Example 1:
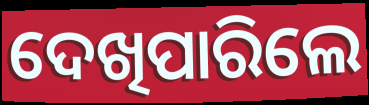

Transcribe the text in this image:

ଦେଖିପାରିଲେ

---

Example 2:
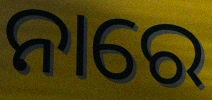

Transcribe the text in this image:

ନାରେ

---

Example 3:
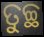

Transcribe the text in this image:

ତୁଚ୍ଛ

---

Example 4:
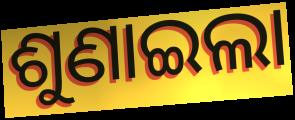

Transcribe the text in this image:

ଶୁଣାଇଲା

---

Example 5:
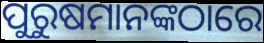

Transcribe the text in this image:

ପୁରୁଷମାନଙ୍କଠାରେ